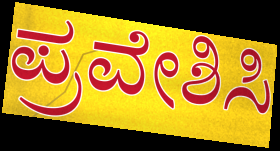
ಪ್ರವೇಶಿಸಿ